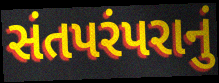
સંતપરંપરાનું